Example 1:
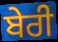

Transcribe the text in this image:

ਬੇਰੀ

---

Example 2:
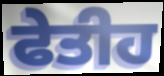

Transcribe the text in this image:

ਫੇਤੀਹ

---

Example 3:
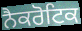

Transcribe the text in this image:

ਨੈਕਰੋਟਿਕ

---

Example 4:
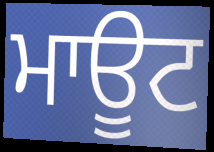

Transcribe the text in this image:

ਮਾਊਟ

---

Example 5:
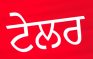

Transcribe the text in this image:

ਟੇਲਰ